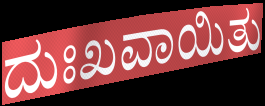
ದುಃಖವಾಯಿತು